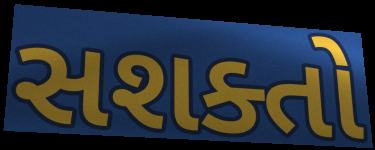
સશક્તો